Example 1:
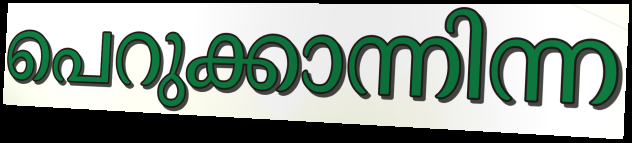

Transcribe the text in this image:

പെറുക്കാന്നിന്ന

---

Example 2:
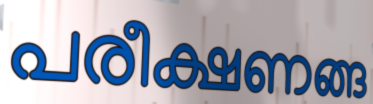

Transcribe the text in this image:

പരീക്ഷണങ്ങ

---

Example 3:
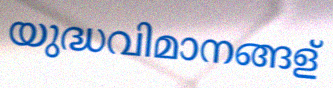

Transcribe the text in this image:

യുദ്ധവിമാനങ്ങള്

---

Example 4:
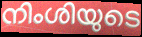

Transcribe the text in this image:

നിംശിയുടെ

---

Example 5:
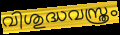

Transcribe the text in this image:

വിശുദ്ധവസ്ത്രം